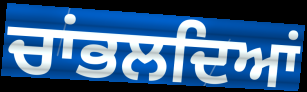
ਚਾਂਭਲਦਿਆਂ